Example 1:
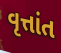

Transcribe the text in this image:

વૃત્તાંત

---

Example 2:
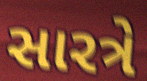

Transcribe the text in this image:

સારત્રે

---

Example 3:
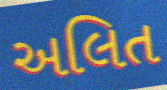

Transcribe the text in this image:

અલિત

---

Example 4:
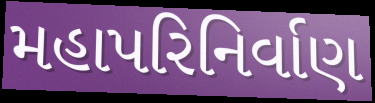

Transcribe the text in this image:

મહાપરિનિર્વાણ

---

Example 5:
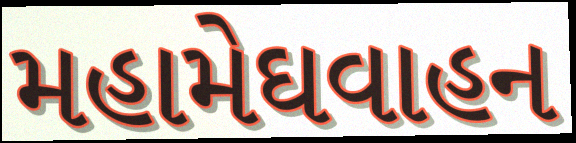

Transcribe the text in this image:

મહામેઘવાહન